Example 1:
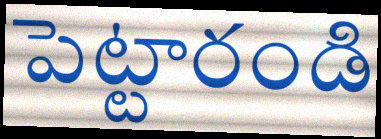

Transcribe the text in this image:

పెట్టారండి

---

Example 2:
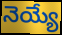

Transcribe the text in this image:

నెయ్యే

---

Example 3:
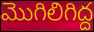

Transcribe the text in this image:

మొగిలిగిద్ద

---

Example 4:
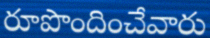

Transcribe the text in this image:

రూపొందించేవారు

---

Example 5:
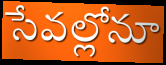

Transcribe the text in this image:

సేవల్లోనూ